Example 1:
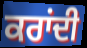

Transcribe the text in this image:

ਕਰਾਂਦੀ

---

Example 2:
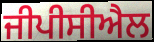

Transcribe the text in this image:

ਜੀਪੀਸੀਐਲ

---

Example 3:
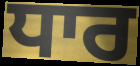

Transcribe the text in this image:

ਧਾਰ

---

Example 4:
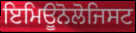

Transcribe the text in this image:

ਇਮਿਊਨੋਲੋਜਿਸਟ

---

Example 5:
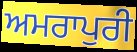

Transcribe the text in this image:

ਅਮਰਾਪੁਰੀ